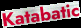
Katabatic